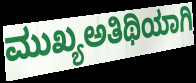
ಮುಖ್ಯಅತಿಥಿಯಾಗಿ